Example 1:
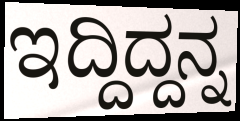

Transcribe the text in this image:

ಇದ್ದಿದ್ದನ್ನ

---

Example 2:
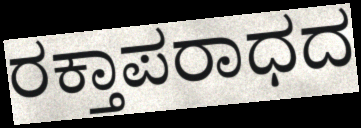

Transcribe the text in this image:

ರಕ್ತಾಪರಾಧದ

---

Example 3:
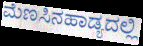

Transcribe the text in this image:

ಮೆಣಸಿನಹಾಡ್ಯದಲ್ಲಿ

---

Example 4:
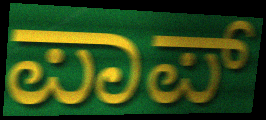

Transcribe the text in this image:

ಪಾಪ್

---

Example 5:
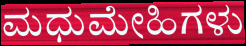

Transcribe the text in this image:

ಮಧುಮೇಹಿಗಳು